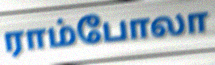
ராம்போலா